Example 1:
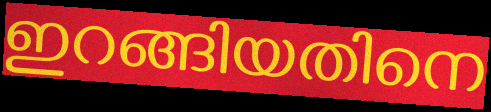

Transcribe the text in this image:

ഇറങ്ങിയതിനെ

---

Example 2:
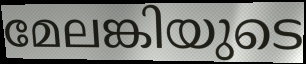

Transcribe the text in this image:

മേലങ്കിയുടെ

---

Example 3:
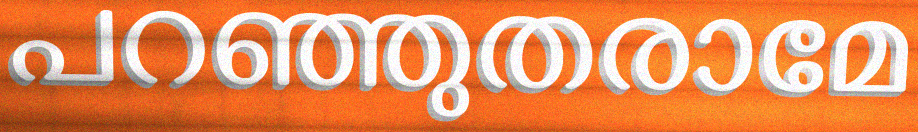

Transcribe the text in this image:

പറഞ്ഞുതരാമേ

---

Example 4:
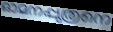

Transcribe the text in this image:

ഓമനപ്പുത്രനെ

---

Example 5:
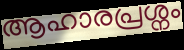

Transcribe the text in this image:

ആഹാരപ്രശ്നം